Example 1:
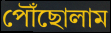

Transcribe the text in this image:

পৌঁছোলাম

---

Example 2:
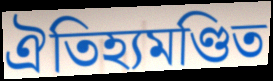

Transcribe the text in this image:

ঐতিহ্যমণ্ডিত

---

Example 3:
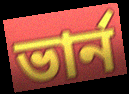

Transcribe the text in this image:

ভার্ন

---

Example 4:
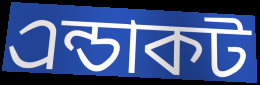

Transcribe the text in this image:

এন্ডাকট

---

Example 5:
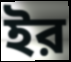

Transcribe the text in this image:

ইর